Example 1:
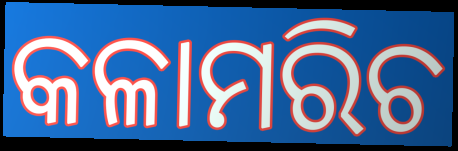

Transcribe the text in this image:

କଳାମରିଚ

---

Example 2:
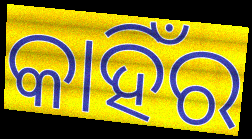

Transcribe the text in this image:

କାହିଁର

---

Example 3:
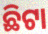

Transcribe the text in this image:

ଛିଟା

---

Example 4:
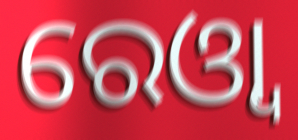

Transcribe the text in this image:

ରେଓ୍ବା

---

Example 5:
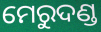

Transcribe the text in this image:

ମେରୁଦଣ୍ଡ